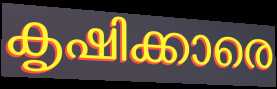
കൃഷിക്കാരെ